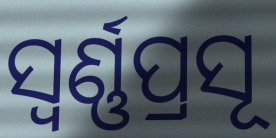
ସ୍ୱର୍ଣ୍ଣପ୍ରସୂ